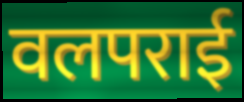
वलपराई